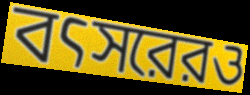
বৎসরেরও